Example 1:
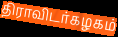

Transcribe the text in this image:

திராவிடர்கழகம்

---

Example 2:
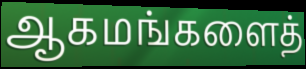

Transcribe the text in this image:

ஆகமங்களைத்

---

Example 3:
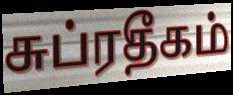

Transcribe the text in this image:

சுப்ரதீகம்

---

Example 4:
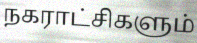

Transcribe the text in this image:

நகராட்சிகளும்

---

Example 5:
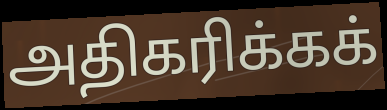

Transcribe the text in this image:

அதிகரிக்கக்